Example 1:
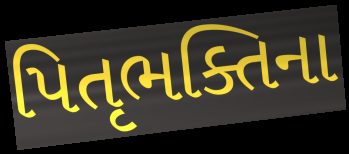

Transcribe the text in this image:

પિતૃભક્તિના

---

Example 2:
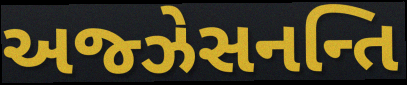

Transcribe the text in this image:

અજ્ઝેસનન્તિ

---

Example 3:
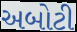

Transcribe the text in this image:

અબોટી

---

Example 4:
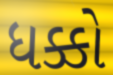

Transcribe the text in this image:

ધક્કો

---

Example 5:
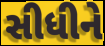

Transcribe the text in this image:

સીધીને